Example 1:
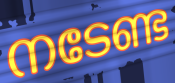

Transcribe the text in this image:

നടേണ്ട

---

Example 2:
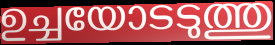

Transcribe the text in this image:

ഉച്ചയോടടുത്തു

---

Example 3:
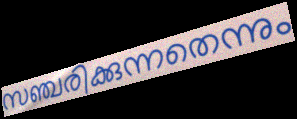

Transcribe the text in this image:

സഞ്ചരിക്കുന്നതെന്നും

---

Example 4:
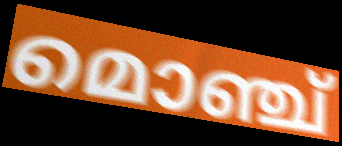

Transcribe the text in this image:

മൊഞ്ച്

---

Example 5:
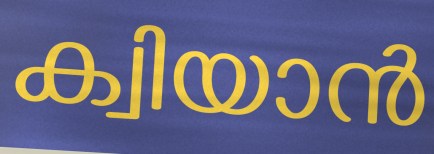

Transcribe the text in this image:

ക്വിയാൻ